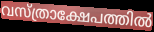
വസ്ത്രാക്ഷേപത്തിൽ